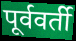
पूर्ववर्ती